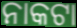
ନାକଟା